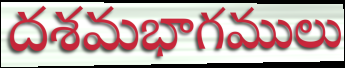
దశమభాగములు